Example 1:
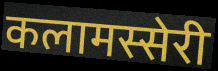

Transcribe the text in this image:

कलामस्सेरी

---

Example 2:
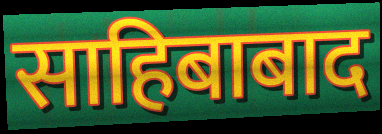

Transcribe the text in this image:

साहिबाबाद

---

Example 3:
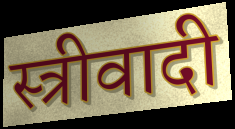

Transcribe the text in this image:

स्त्रीवादी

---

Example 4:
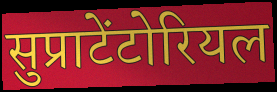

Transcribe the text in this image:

सुप्राटेंटोरियल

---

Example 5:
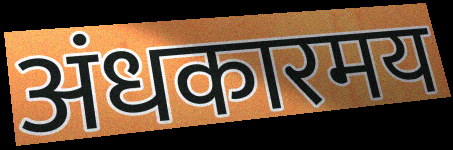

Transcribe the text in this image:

अंधकारमय